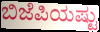
ಬಿಜೆಪಿಯಷ್ಟು